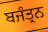
ਬਜੰਤ੍ਰਨ